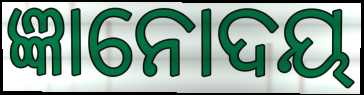
ଜ୍ଞାନୋଦୟ